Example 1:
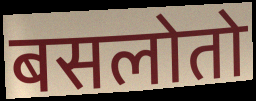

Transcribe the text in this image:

बसलोतो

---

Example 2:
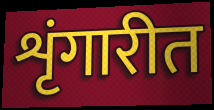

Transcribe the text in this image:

शृंगारीत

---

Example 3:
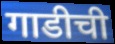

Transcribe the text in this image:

गाडीची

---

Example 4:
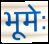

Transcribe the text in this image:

भूमेः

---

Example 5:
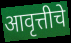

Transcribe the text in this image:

आवृत्तीचे